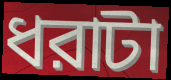
ধরাটা